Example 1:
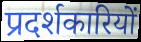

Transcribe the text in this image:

प्रदर्शकारियों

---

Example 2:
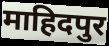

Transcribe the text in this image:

माहिदपुर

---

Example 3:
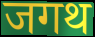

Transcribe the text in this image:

जगथ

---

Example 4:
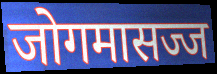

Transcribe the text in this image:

जोगमासज्ज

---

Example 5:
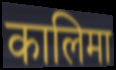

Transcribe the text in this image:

कालिमा